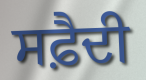
ਸਫ਼ੈਦੀ